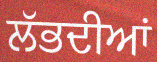
ਲੱਭਦੀਆਂ